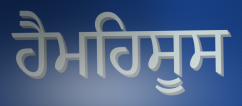
ਹੈਮਹਿਸੂਸ